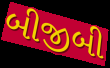
બીજીબી